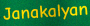
Janakalyan